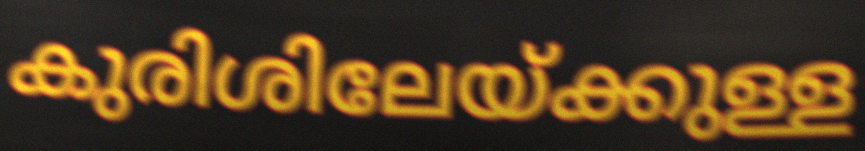
കുരിശിലേയ്ക്കുള്ള